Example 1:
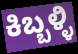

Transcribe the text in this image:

ಕಿಬ್ಬಳ್ಳಿ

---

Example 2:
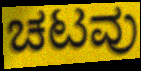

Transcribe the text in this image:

ಚಟವು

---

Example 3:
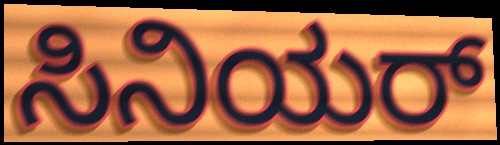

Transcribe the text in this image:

ಸಿನಿಯರ್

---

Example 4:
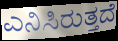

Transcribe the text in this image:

ಎನಿಸಿರುತ್ತದೆ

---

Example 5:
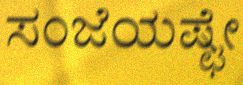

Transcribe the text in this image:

ಸಂಜೆಯಷ್ಟೇ